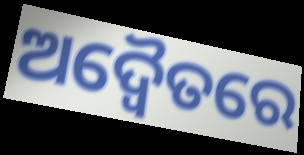
ଅଦ୍ୱୈତରେ